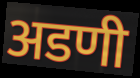
अडणी